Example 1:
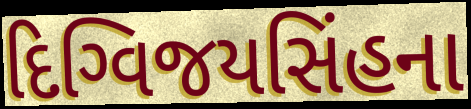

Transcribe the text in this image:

દિગ્વિજયસિંહના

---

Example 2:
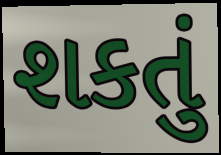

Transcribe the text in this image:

શકતું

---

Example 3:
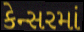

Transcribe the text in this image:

કેન્સરમાં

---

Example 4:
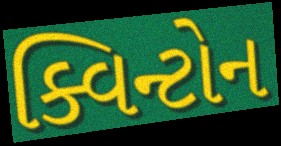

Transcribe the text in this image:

ક્વિન્ટોન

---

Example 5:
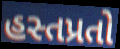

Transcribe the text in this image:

હસ્તપ્રતો